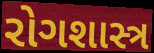
રોગશાસ્ત્ર